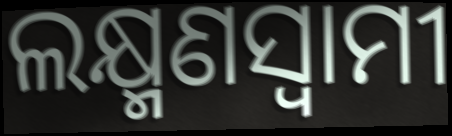
ଲକ୍ଷ୍ମଣସ୍ଵାମୀ